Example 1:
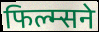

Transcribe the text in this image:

फिल्म्सने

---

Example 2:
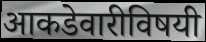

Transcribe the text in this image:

आकडेवारीविषयी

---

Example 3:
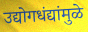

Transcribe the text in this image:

उद्योगधंद्यांमुळे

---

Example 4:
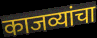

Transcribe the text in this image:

काजव्यांचा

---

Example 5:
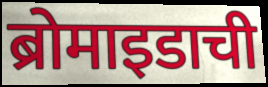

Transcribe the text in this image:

ब्रोमाइडाची